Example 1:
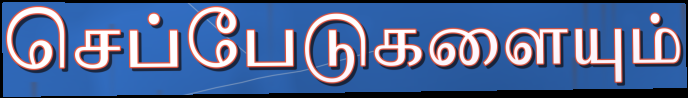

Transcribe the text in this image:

செப்பேடுகளையும்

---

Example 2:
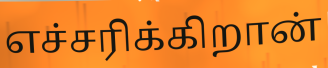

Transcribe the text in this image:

எச்சரிக்கிறான்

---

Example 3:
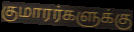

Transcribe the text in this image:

குமாரர்களுக்கு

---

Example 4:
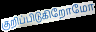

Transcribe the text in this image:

குறிப்பிடுகிறோமோ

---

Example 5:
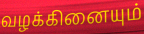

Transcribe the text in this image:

வழக்கினையும்